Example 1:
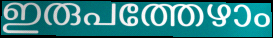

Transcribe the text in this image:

ഇരുപത്തേഴാം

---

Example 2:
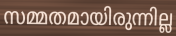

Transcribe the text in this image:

സമ്മതമായിരുന്നില്ല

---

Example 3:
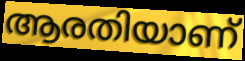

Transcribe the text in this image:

ആരതിയാണ്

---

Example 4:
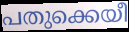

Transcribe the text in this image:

പതുക്കെയീ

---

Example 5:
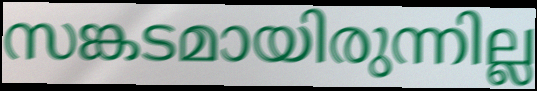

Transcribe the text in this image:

സങ്കടമായിരുന്നില്ല